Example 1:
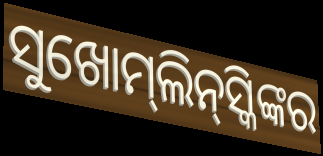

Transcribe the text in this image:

ସୁଖୋମ୍‍ଲିନ୍‍ସ୍କିଙ୍କର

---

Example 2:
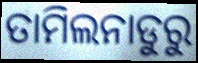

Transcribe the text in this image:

ତାମିଲନାଡୁରୁ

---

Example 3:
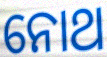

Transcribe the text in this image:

ନୋଥ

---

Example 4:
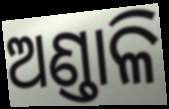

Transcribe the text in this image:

ଅଣ୍ଡାଳି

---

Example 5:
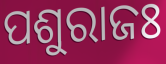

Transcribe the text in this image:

ପଶୁରାଜଃ